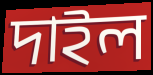
দাইল